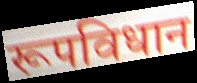
रूपविधान